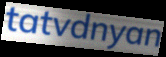
tatvdnyan